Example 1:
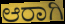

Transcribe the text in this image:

ಆರಾಗಿ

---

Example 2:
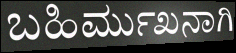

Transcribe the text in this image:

ಬಹಿರ್ಮುಖನಾಗಿ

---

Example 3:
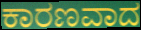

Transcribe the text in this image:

ಕಾರಣವಾದ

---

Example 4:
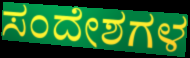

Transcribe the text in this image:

ಸಂದೇಶಗಳ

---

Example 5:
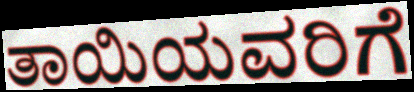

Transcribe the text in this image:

ತಾಯಿಯವರಿಗೆ